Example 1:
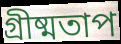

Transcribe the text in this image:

গ্রীষ্মতাপ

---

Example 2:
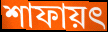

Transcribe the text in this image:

শাফায়ৎ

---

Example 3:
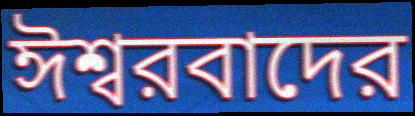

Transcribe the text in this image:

ঈশ্বরবাদের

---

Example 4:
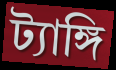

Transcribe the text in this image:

ট্যাঙ্গি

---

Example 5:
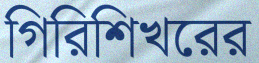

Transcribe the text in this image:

গিরিশিখরের